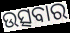
ଉତ୍ସବାର